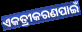
ଏକତ୍ରୀକରଣପାଇଁ